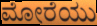
ಮೋರೆಯು